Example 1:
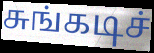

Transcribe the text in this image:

சுங்கடிச்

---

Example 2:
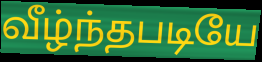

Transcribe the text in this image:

வீழ்ந்தபடியே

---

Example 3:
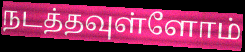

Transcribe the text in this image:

நடத்தவுள்ளோம்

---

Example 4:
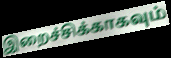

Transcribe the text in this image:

இறைச்சிக்காகவும்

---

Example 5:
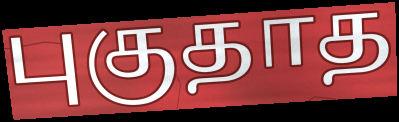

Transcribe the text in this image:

புகுதாத